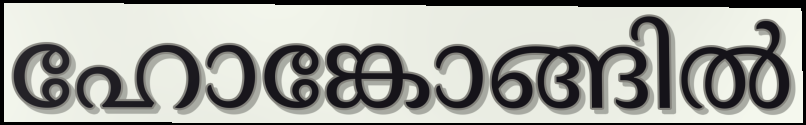
ഹോങ്കോങ്ങിൽ